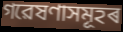
গৱেষণাসমূহৰ